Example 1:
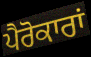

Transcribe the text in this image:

ਪੈਰੋਕਾਰਾਂ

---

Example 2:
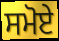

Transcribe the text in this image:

ਸਮੋਏ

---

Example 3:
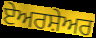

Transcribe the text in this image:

ਏਅਰਸ਼ੇਅਰ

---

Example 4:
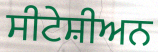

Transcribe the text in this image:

ਸੀਟੇਸ਼ੀਅਨ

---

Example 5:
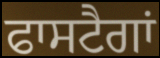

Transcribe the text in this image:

ਫਾਸਟੈਗਾਂ